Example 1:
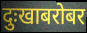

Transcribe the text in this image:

दुःखाबरोबर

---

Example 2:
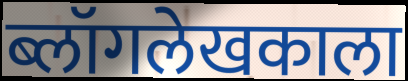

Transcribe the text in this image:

ब्लॉगलेखकाला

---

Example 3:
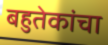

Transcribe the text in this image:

बहुतेकांचा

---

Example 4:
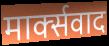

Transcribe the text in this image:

मार्क्‍सवाद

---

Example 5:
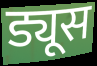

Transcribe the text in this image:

ड्यूस